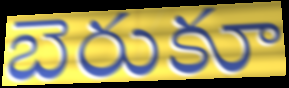
బెరుకూ